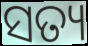
ସତ୍ୟ